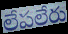
లేపలేరు